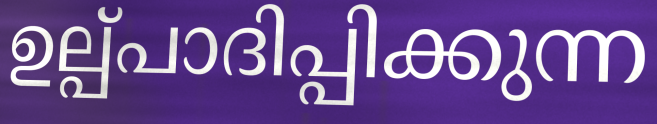
ഉല്പ്പാദിപ്പിക്കുന്ന